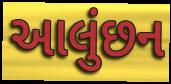
આલુંછન